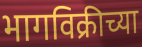
भागविक्रीच्या